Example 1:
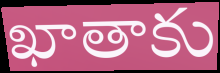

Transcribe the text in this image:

ఖాతాకు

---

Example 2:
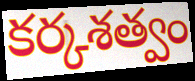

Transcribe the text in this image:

కర్కశత్వం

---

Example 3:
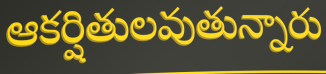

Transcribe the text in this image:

ఆకర్షితులవుతున్నారు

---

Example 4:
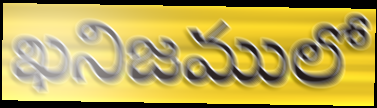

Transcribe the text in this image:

ఖనిజములో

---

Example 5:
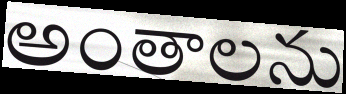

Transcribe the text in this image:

అంతాలను